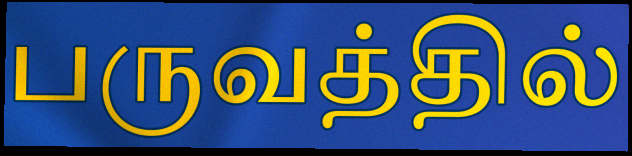
பருவத்தில்